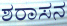
ಶರಾಸನ